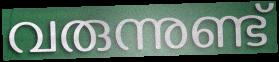
വരുന്നുണ്ട്